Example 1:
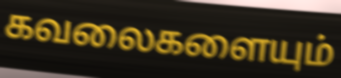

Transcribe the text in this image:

கவலைகளையும்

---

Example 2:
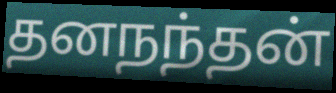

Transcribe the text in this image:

தனநந்தன்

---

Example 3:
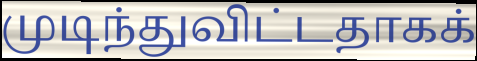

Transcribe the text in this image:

முடிந்துவிட்டதாகக்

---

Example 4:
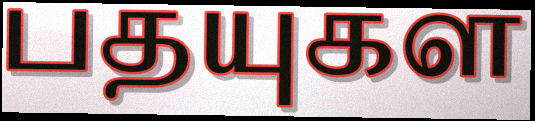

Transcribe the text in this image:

பதயுகள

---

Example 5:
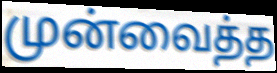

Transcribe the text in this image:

முன்வைத்த